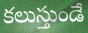
కలుస్తుండే